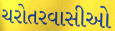
ચરોતરવાસીઓ